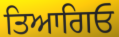
ਤਿਆਗਿਓ